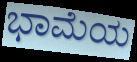
ಭಾಮೆಯ